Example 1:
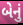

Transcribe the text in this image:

બેનું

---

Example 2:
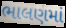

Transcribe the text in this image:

ભાલણમાં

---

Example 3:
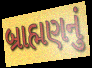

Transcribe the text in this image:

બ્રાહ્મણનું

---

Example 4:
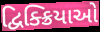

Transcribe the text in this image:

દ્વિક્ક્રિયાઓ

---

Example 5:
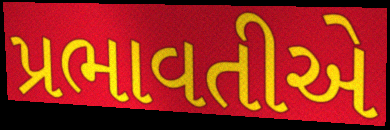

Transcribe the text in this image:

પ્રભાવતીએ